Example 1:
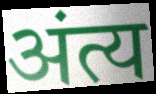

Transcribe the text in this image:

अंत्य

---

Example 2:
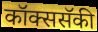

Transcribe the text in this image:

कॉक्ससॅकी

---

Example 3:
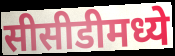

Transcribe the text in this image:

सीसीडीमध्ये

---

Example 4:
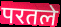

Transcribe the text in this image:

परतले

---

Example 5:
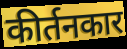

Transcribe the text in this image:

कीर्तनकार